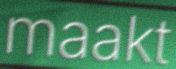
maakt